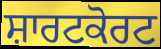
ਸ਼ਾਰਟਕੋਰਟ